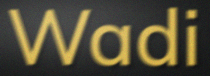
Wadi